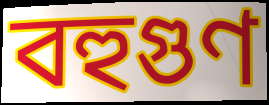
বহুগুণ